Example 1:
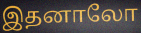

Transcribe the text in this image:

இதனாலோ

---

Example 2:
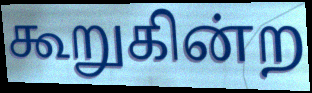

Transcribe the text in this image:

கூறுகின்ற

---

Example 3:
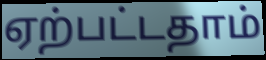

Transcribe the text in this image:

ஏற்பட்டதாம்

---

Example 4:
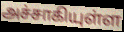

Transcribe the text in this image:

அச்சாகியுள்ள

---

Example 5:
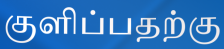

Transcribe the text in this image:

குளிப்பதற்கு